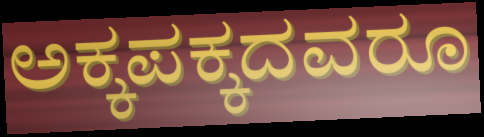
ಅಕ್ಕಪಕ್ಕದವರೂ